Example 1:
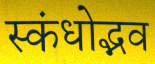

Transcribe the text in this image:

स्कंधोद्भव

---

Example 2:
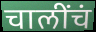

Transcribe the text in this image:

चालींचं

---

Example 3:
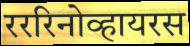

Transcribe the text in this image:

रररिनोव्हायरस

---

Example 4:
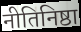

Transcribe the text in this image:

नीतिनिष्ठा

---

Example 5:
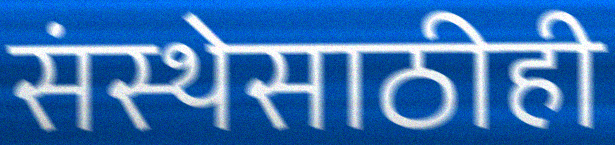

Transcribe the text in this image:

संस्थेसाठीही